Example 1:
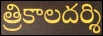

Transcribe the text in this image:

త్రికాలదర్శి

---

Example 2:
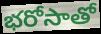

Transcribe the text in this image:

భరోసాతో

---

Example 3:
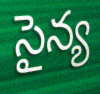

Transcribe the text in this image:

సైన్య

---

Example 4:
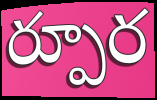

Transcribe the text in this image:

ర్పూర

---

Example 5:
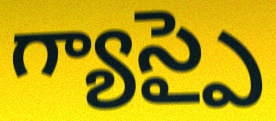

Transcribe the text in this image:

గ్యాస్పై